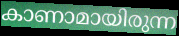
കാണാമായിരുന്ന